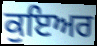
ਕੁਇਅਰ